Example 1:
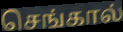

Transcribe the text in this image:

செங்கால்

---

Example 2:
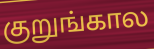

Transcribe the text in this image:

குறுங்கால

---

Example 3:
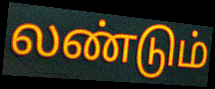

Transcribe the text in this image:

லண்டும்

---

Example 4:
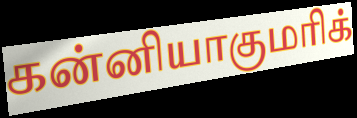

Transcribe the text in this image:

கன்னியாகுமரிக்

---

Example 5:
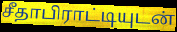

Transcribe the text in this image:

சீதாபிராட்டியுடன்